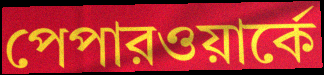
পেপারওয়ার্কে